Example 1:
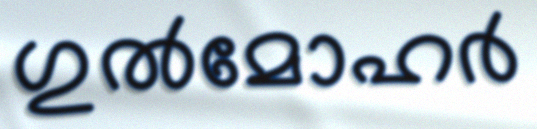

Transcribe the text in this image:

ഗുൽമോഹർ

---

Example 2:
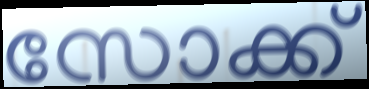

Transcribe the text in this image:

സോക്ക്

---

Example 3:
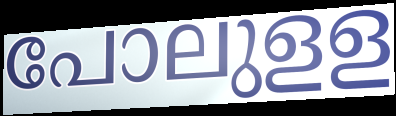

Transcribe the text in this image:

പോലുളള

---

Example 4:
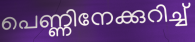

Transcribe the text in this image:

പെണ്ണിനേക്കുറിച്ച്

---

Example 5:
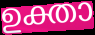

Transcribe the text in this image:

ഉക്താ